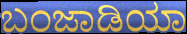
ಬಂಜಾಡಿಯಾ